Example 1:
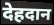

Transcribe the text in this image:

देहदान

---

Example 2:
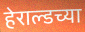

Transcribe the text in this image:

हेराल्डच्या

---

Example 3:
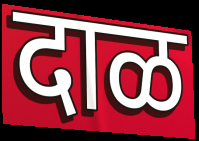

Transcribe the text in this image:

दाळ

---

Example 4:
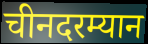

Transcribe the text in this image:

चीनदरम्यान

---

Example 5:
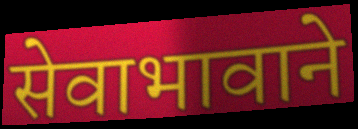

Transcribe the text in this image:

सेवाभावाने